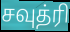
சவுத்ரி